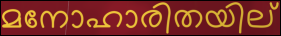
മനോഹാരിതയില്